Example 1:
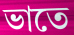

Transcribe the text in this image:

ভাতে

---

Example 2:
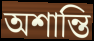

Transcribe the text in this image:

অশান্তি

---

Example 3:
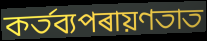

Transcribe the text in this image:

কৰ্তব্যপৰায়ণতাত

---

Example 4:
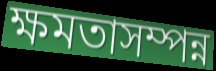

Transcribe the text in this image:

ক্ষমতাসম্পন্ন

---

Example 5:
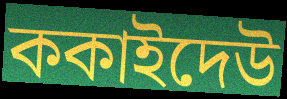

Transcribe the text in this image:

ককাইদেউ